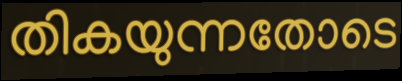
തികയുന്നതോടെ